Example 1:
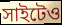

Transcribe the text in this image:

সাইটেও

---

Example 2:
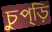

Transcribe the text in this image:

চুপ্‌ড়ি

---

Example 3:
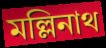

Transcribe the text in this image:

মল্লিনাথ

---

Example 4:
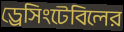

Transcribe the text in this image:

ড্রেসিংটেবিলের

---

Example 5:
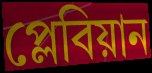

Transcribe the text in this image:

প্লেবিয়ান